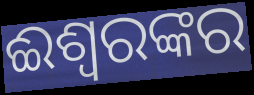
ଈଶ୍ୱରଙ୍କର